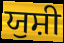
ਯੁਸ਼ੀ